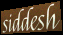
siddesh